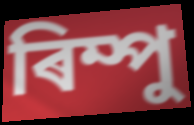
ৰিম্পু